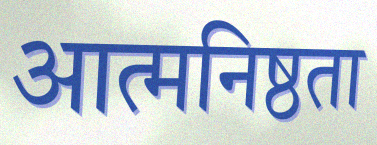
आत्मनिष्ठता